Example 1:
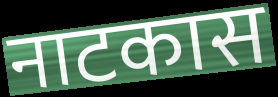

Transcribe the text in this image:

नाटकास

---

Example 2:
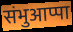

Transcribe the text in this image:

संभुआप्पा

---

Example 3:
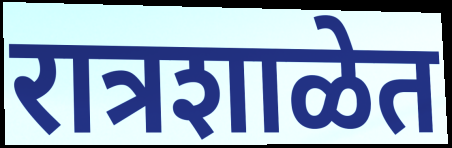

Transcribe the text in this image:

रात्रशाळेत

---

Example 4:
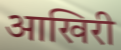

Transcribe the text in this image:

आखिरी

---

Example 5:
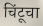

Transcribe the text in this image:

चिंटूचा